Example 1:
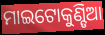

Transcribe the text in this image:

ମାଇଟୋକୁଣ୍ଡିଆ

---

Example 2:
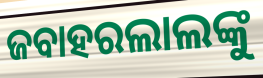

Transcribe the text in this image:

ଜବାହରଲାଲଙ୍କୁ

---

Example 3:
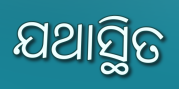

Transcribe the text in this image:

ଯଥାସ୍ଥିତ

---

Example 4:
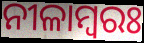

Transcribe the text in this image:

ନୀଳାମ୍ବରଃ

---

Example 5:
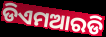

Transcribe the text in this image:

ଡିଏମଆରଡି